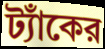
ট্যাঁকের